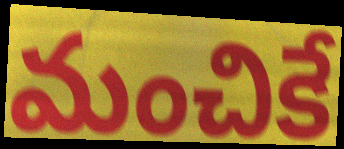
మంచికే